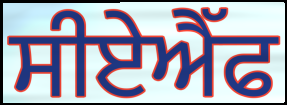
ਸੀਏਐੱਫ